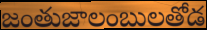
జంతుజాలంబులతోడ